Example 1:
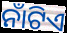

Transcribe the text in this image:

ନାଁଟିଏ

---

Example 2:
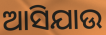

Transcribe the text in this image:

ଆସିଯାଉ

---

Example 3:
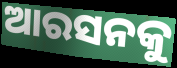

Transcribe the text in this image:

ଆରସନକୁ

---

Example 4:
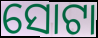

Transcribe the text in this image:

ସୋଟା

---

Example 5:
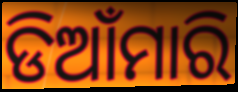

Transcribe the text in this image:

ଡିଆଁମାରି